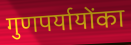
गुणपर्यायोंका